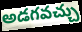
అడగవచ్చు